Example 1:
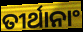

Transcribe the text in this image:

ତୀର୍ଥାନାଂ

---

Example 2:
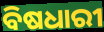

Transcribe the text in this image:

ବିଷଧାରୀ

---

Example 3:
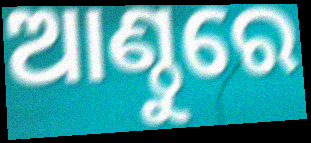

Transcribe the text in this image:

ଆଣ୍ଠୁରେ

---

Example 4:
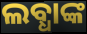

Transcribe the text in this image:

ଲବ୍ଧାଙ୍କ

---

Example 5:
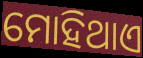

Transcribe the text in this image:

ମୋହିଥାଏ